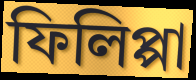
ফিলিপ্পা